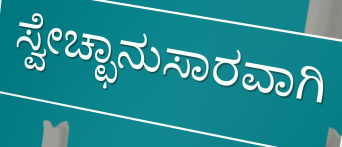
ಸ್ವೇಚ್ಛಾನುಸಾರವಾಗಿ